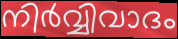
നിർവ്വിവാദം